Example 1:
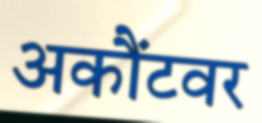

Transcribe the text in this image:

अकौंटवर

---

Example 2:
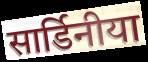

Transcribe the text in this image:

सार्डिनीया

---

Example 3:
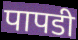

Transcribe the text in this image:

पापडी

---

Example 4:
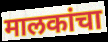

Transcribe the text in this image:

मालकांचा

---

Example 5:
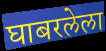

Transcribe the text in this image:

घाबरलेला